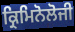
ਕ੍ਰਿਮਿਨੋਲੋਜੀ